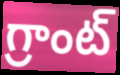
గ్రాంట్